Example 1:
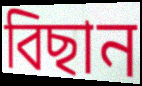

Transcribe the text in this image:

বিছান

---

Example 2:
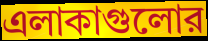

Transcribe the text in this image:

এলাকাগুলোর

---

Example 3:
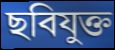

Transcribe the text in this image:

ছবিযুক্ত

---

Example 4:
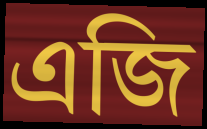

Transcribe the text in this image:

এজি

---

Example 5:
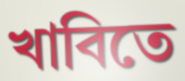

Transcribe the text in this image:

খাবিতে